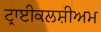
ਟ੍ਰਾਈਕਲਸ਼ੀਅਮ